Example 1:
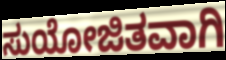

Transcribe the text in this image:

ಸುಯೋಜಿತವಾಗಿ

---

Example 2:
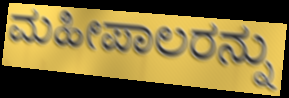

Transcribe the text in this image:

ಮಹೀಪಾಲರನ್ನು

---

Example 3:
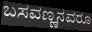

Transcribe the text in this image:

ಬಸವಣ್ಣನವರೂ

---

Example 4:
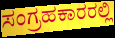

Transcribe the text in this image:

ಸಂಗ್ರಹಕಾರರಲ್ಲಿ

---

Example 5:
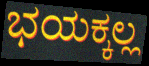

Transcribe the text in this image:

ಭಯಕ್ಕಲ್ಲ